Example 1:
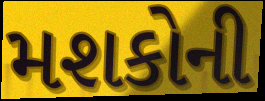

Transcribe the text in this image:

મશકોની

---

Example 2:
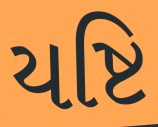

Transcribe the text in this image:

યષ્ટિ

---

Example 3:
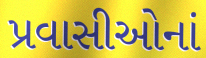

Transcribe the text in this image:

પ્રવાસીઓનાં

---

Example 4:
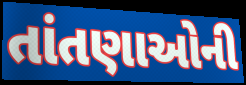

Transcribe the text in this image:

તાંતણાઓની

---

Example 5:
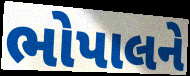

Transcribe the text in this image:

ભોપાલને